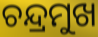
ଚନ୍ଦ୍ରମୁଖ